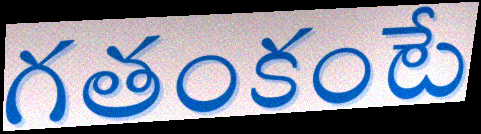
గతంకంటే